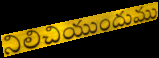
నిలిచియుందుము